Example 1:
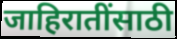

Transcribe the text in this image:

जाहिरातींसाठी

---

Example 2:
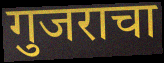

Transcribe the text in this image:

गुजराचा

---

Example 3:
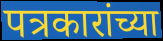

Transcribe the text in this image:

पत्रकारांच्या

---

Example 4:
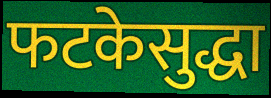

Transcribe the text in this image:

फटकेसुद्धा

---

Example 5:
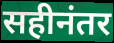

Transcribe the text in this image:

सहीनंतर